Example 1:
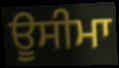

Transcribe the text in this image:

ਊਸੀਮਾ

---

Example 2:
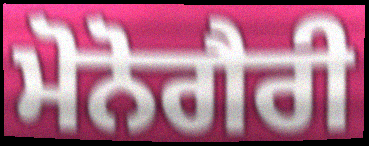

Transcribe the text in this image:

ਮੋਨੋਗੈਰੀ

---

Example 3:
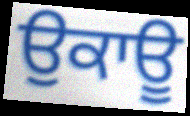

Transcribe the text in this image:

ਉਕਾਊ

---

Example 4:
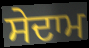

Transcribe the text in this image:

ਸੇਦਾਮ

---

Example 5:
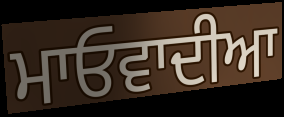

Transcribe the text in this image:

ਮਾਓਵਾਦੀਆ